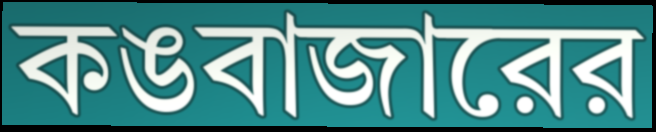
কঙবাজারের